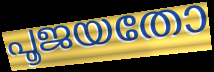
പൂജയതോ